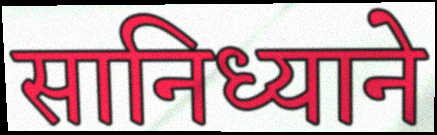
सानिध्याने